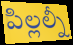
పిల్లల్నీ